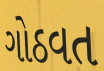
ગોઠવત